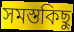
সমস্তকিছু